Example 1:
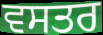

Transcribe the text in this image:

ਵਸਤਰ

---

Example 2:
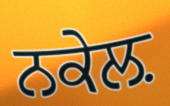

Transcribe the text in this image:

ਨਕੇਲ਼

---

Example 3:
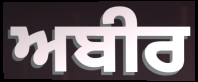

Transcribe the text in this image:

ਅਬੀਰ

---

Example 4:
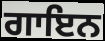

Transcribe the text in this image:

ਗਾਇਨ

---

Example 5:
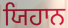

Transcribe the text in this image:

ਯਿਹਾਨ